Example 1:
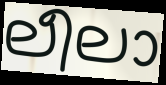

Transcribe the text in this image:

ലീലാ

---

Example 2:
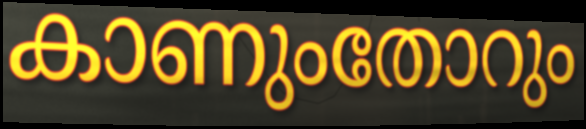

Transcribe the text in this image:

കാണുംതോറും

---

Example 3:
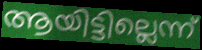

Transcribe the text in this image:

ആയിട്ടില്ലെന്ന്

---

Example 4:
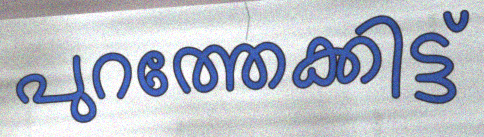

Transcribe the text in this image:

പുറത്തേക്കിട്ട്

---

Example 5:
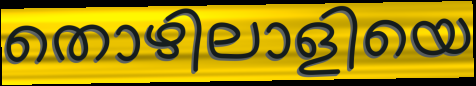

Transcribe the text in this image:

തൊഴിലാളിയെ